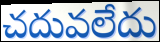
చదువలేదు